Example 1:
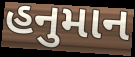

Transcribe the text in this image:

હનુમાન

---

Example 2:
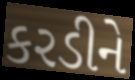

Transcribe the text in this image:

કરડીને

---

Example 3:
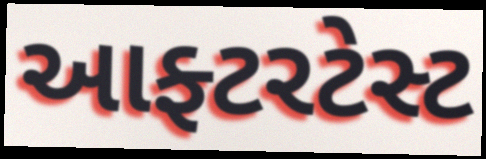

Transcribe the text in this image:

આફ્ટરટેસ્ટ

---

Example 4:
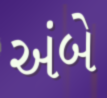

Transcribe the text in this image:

અંબે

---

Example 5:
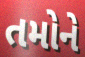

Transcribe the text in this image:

તમોને